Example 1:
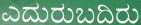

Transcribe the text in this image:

ಎದುರುಬದಿರು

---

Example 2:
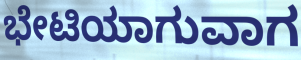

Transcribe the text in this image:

ಭೇಟಿಯಾಗುವಾಗ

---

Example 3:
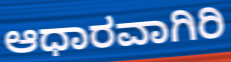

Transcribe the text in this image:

ಆಧಾರವಾಗಿರಿ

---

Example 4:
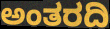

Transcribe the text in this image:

ಅಂತರದಿ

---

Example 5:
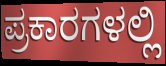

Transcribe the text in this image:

ಪ್ರಕಾರಗಳಲ್ಲಿ